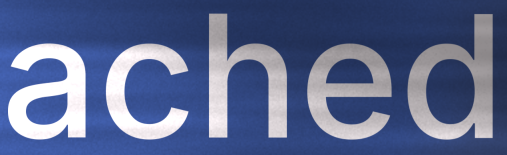
ached